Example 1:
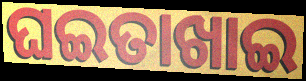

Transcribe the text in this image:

ଘଇତାଖାଇ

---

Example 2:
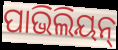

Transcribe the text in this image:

ପାଭିଲିୟନ୍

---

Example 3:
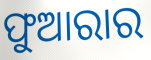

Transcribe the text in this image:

ଫୁଆରାର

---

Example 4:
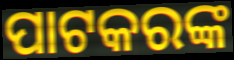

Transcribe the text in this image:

ପାଟକରଙ୍କ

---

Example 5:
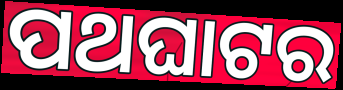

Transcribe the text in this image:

ପଥଘାଟର